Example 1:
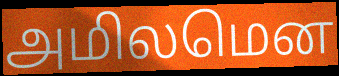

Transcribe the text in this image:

அமிலமென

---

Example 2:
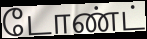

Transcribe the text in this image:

டோண்ட்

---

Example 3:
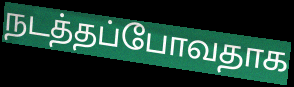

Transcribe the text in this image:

நடத்தப்போவதாக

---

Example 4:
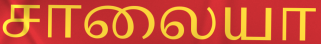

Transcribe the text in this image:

சாலையா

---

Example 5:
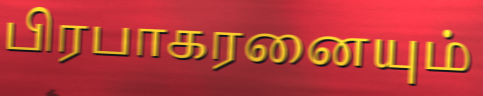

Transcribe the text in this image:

பிரபாகரனையும்